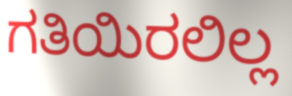
ಗತಿಯಿರಲಿಲ್ಲ